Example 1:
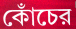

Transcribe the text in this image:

কোঁচের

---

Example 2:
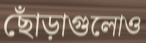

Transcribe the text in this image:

ছোঁড়াগুলোও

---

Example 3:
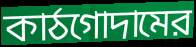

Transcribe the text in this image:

কাঠগোদামের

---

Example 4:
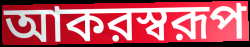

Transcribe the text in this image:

আকরস্বরূপ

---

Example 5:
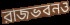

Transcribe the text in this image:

রাজভবনও